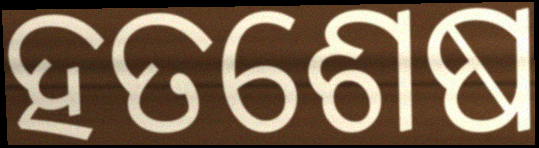
ହତଶେଷ